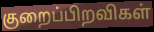
குறைப்பிறவிகள்